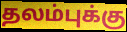
தலம்புக்கு